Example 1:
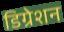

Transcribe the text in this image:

डिग्रेशन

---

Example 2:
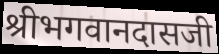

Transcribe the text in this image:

श्रीभगवानदासजी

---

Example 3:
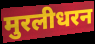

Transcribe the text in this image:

मुरलीधरन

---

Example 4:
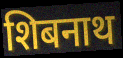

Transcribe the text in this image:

शिबनाथ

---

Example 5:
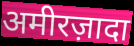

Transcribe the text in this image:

अमीरज़ादा